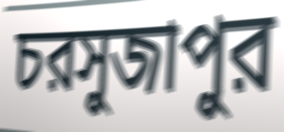
চরসুজাপুর